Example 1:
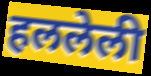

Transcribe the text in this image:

हललेली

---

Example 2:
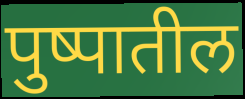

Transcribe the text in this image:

पुष्पातील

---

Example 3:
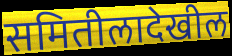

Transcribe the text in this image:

समितीलादेखील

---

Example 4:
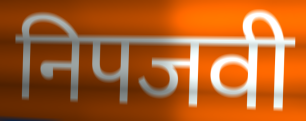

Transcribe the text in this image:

निपजवी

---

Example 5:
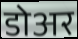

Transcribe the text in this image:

डोअर